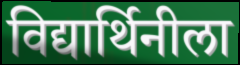
विद्यार्थिनीला